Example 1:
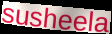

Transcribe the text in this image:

susheela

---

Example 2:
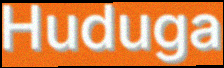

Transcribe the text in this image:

Huduga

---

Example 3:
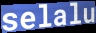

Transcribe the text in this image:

selalu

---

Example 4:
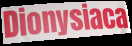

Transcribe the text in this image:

Dionysiaca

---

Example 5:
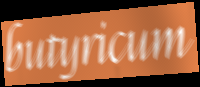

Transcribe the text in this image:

butyricum